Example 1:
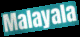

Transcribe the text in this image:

Malayala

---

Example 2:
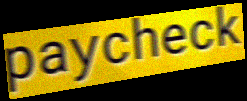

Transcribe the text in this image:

paycheck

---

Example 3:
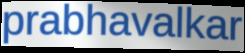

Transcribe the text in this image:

prabhavalkar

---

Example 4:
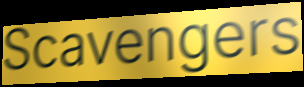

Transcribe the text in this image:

Scavengers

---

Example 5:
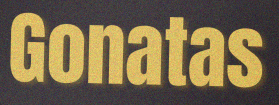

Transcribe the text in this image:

Gonatas